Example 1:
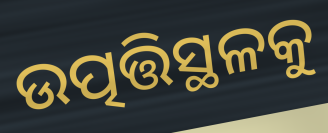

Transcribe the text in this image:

ଉତ୍ପତ୍ତିସ୍ଥଳକୁ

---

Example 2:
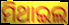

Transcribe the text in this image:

ମିଥାଇଲ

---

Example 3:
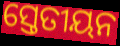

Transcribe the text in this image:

ସ୍ତେତୀୟନ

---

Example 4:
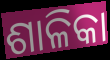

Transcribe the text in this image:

ଶାଳିକା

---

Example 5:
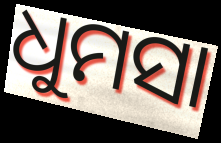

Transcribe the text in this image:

ଧୁମସା